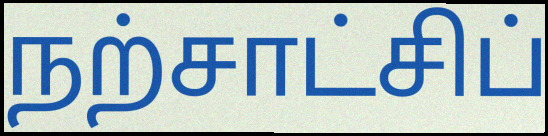
நற்சாட்சிப்